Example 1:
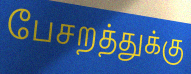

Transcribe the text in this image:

பேசறத்துக்கு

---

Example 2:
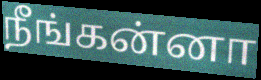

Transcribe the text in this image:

நீங்கன்னா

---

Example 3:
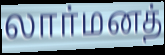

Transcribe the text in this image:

லார்மனத்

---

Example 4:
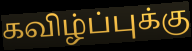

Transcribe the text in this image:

கவிழ்ப்புக்கு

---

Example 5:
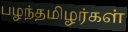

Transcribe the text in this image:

பழந்தமிழர்கள்